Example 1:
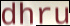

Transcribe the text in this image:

dhru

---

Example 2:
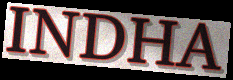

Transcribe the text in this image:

INDHA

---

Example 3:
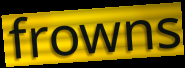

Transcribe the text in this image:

frowns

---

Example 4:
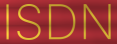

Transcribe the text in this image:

ISDN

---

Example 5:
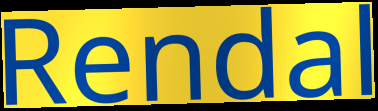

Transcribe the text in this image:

Rendal